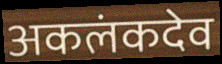
अकलंकदेव